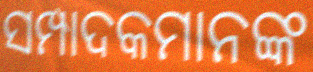
ସମ୍ପାଦକମାନଙ୍କ